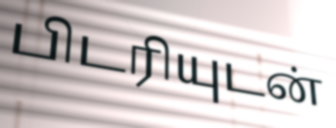
பிடரியுடன்